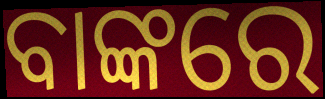
ବାଙ୍କରେ